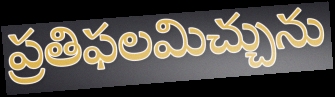
ప్రతిఫలమిచ్చును